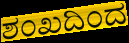
ಶಂಖದಿಂದ